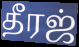
தீரஜ்